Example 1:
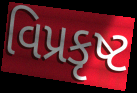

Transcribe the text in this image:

વિપ્રકૃષ્ટ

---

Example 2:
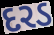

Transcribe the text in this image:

દરડ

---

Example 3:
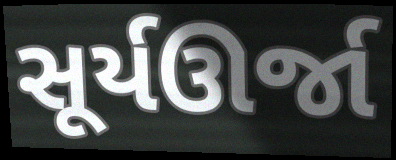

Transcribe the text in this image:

સૂર્યઊર્જા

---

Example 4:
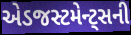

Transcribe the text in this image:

એડજસ્ટમેન્ટ્સની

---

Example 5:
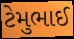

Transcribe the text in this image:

ટેમુભાઈ